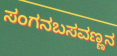
ಸಂಗನಬಸವಣ್ಣನ